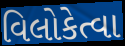
વિલોકેત્વા